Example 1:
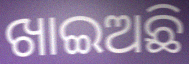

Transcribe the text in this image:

ଖାଇଅଛି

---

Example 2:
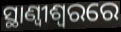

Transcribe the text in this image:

ସ୍ଥାଣ୍ୱୀଶ୍ୱରରେ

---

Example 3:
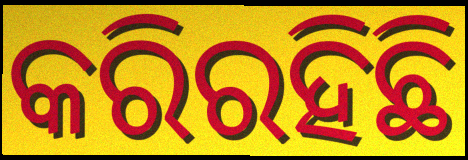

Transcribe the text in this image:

କରିରହିଛି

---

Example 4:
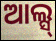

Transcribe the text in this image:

ଆଲ୍ସ୍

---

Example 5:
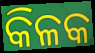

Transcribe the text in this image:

କିଳକ